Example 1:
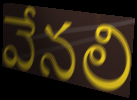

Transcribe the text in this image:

వేనలి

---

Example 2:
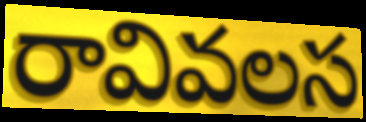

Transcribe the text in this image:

రావివలస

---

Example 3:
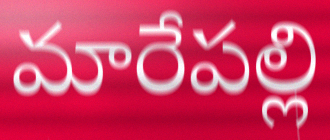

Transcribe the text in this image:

మారేపల్లి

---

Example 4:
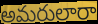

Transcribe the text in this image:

అమరులారా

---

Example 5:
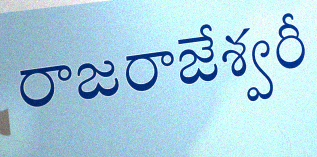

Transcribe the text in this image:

రాజరాజేశ్వరీ